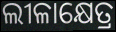
ଲୀଳାକ୍ଷେତ୍ର